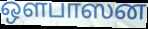
ஒளபாஸன